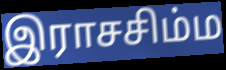
இராசசிம்ம